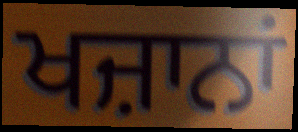
ਖਜ਼ਾਨਾਂ